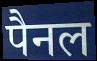
पैनल